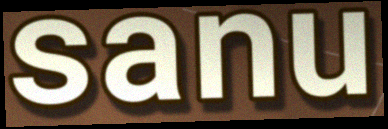
sanu